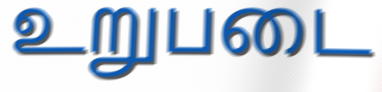
உறுபடை